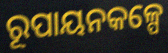
ରୂପାୟନକଳ୍ପେ